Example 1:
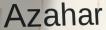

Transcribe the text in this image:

Azahar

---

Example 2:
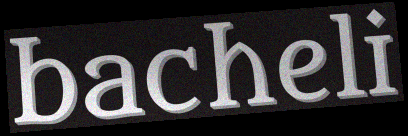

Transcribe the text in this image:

bacheli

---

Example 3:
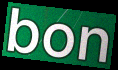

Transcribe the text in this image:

bon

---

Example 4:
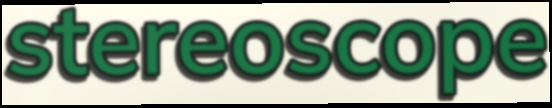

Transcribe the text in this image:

stereoscope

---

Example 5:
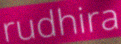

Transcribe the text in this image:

rudhira